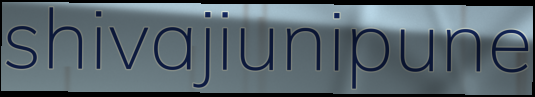
shivajiunipune